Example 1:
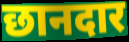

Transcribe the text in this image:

छानदार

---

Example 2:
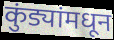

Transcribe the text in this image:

कुंड्यांमधून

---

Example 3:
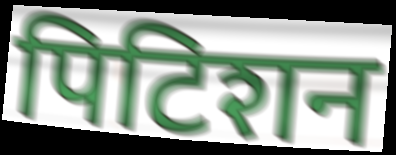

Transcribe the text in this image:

पिटिशन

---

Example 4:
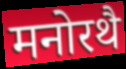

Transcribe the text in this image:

मनोरथै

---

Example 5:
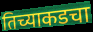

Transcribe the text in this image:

तिच्याकडचा